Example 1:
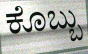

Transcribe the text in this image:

ಕೊಬ್ಬು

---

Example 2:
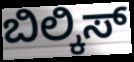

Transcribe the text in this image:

ಬಿಲ್ಕಿಸ್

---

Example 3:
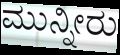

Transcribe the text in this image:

ಮುನ್ನೀರು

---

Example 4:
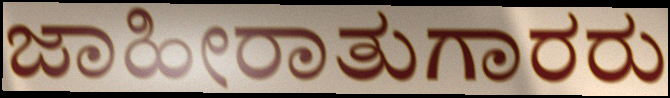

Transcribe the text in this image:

ಜಾಹೀರಾತುಗಾರರು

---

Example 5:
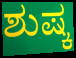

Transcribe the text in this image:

ಶುಷ್ಕ